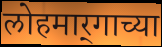
लोहमार्गाच्या